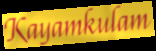
Kayamkulam